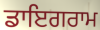
ਡਾਇਗਰਾਮ